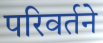
परिवर्तने